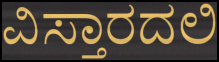
ವಿಸ್ತಾರದಲಿ